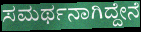
ಸಮರ್ಥನಾಗಿದ್ದೇನೆ